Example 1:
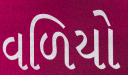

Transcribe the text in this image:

વળિયો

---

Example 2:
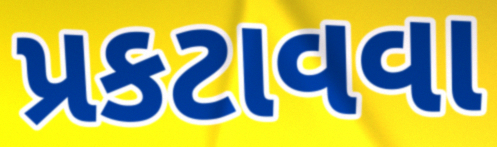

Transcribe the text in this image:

પ્રકટાવવા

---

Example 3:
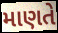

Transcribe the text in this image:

માણતે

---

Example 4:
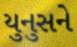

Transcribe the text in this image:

યુનુસને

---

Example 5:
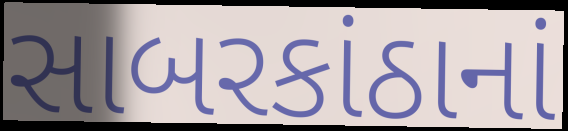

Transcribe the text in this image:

સાબરકાંઠાનાં